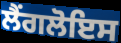
ਲੈਂਗਲੋਇਸ